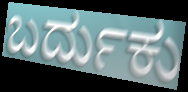
ಬರ್ದುಕು